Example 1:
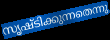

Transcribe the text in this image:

സൃഷ്ടിക്കുന്നതെന്നു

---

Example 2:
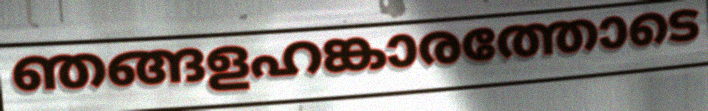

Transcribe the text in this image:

ഞങ്ങളഹങ്കാരത്തോടെ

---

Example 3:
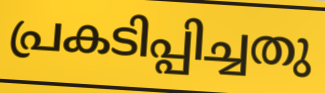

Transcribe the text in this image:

പ്രകടിപ്പിച്ചതു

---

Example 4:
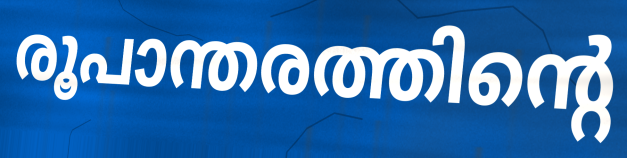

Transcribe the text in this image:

രൂപാന്തരത്തിന്റെ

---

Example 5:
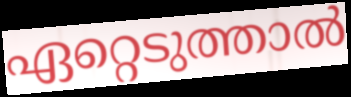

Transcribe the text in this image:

ഏറ്റെടുത്താൽ